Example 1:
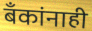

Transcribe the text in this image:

बँकांनाही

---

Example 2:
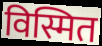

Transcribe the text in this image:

विस्मित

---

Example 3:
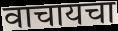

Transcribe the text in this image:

वाचायचा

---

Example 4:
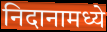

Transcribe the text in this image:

निदानामध्ये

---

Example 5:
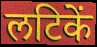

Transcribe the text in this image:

लटिकें